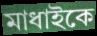
মাধাইকে